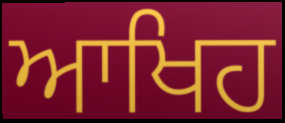
ਆਖਿਹ